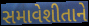
સમાવેશીતાને